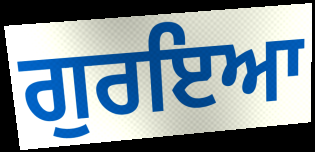
ਗੁਰਇਆ